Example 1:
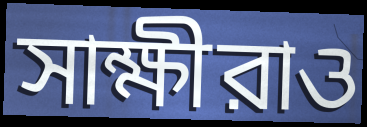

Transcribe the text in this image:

সাক্ষীরাও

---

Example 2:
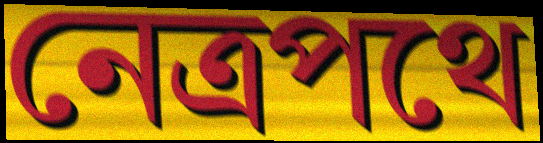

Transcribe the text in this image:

নেত্রপথে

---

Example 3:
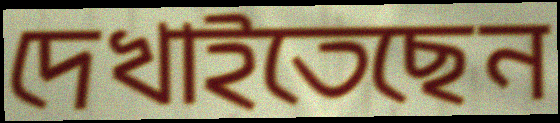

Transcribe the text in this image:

দেখাইতেছেন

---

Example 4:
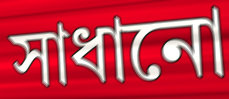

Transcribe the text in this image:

সাধানো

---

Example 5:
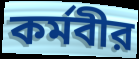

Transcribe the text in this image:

কর্মবীর